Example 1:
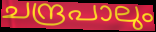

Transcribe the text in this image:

ചന്ദ്രപാലും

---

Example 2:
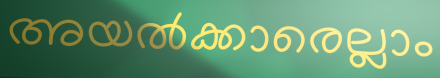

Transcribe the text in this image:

അയൽക്കാരെല്ലാം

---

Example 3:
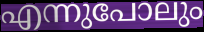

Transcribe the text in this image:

എന്നുപോലും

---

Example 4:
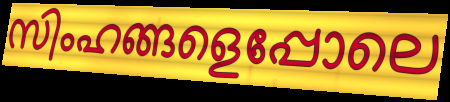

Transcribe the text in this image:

സിംഹങ്ങളെപ്പോലെ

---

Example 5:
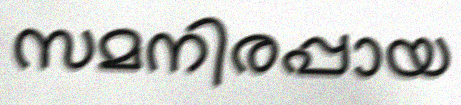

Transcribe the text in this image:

സമനിരപ്പായ